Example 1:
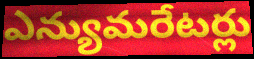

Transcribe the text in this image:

ఎన్యుమరేటర్లు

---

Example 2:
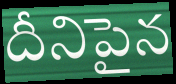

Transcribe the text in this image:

దీనిపైన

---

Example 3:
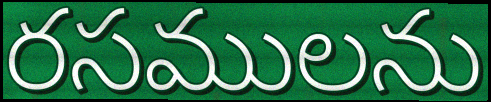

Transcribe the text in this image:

రసములను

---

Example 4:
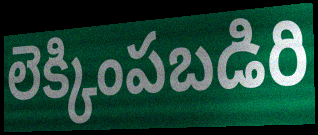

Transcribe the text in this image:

లెక్కింపబడిరి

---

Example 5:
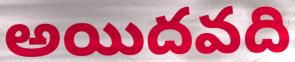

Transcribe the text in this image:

అయిదవది